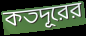
কতদূরের